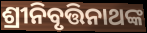
ଶ୍ରୀନିବୃତ୍ତିନାଥଙ୍କ